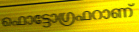
ഫൊട്ടോഗ്രഫറാണ്